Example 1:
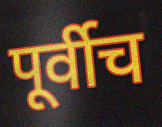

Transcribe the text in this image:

पूर्वीच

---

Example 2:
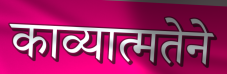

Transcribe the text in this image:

काव्यात्मतेने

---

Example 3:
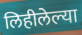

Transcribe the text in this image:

लिहीलेल्या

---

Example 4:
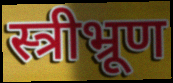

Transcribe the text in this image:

स्त्रीभ्रूण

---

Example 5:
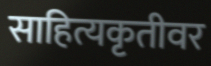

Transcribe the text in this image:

साहित्यकृतीवर